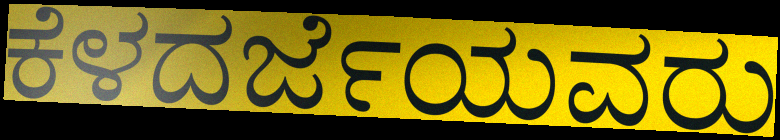
ಕೆಳದರ್ಜೆಯವರು